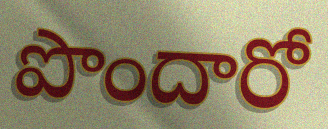
పొందారో